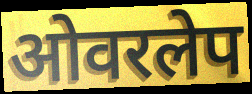
ओवरलेप